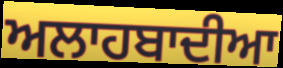
ਅਲਾਹਬਾਦੀਆ